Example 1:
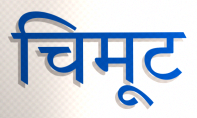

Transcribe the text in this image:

चिमूट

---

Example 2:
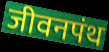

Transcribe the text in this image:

जीवनपंथ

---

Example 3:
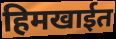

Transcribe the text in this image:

हिमखाईत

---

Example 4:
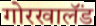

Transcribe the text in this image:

गोरखालॅंड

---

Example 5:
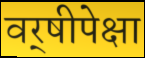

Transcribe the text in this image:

वर्षीपेक्षा